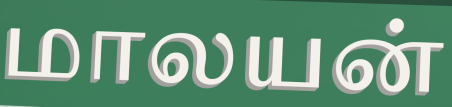
மாலயன்